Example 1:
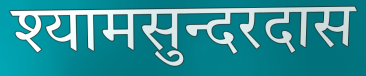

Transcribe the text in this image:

श्यामसुन्दरदास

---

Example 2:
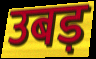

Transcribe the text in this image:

उबड़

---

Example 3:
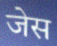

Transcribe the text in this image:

जेस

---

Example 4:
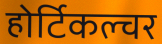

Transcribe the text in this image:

होर्टिकल्चर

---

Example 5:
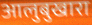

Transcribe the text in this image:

आलुबुखारा